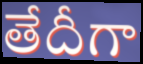
తేదీగా